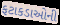
ફટાકડાઓની